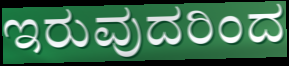
ಇರುವುದರಿಂದ